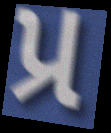
પ્ર